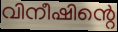
വിനീഷിന്റെ